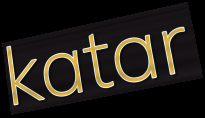
katar